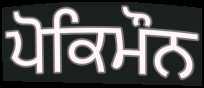
ਪੋਕਿਮੌਨ